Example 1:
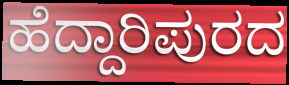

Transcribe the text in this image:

ಹೆದ್ದಾರಿಪುರದ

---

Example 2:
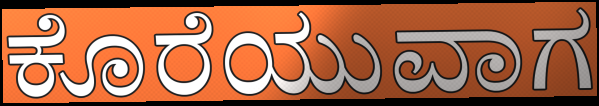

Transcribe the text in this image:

ಕೊರೆಯುವಾಗ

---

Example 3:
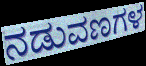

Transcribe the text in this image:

ನಡುವಣಗಳ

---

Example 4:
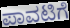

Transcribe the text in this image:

ಪಾವಟಿಗೆ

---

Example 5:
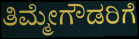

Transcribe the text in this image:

ತಿಮ್ಮೇಗೌಡರಿಗೆ